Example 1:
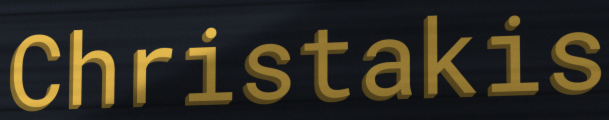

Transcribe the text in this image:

Christakis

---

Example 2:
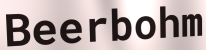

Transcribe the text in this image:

Beerbohm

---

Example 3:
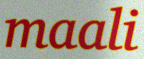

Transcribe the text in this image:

maali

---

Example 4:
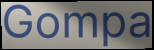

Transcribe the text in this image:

Gompa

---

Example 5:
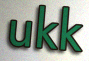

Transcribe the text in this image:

ukk